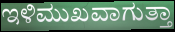
ಇಳಿಮುಖವಾಗುತ್ತಾ